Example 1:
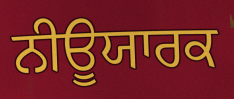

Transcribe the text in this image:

ਨੀਊਯਾਰਕ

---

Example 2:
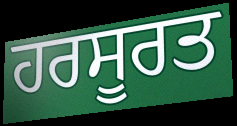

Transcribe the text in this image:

ਹਰਸੂਰਤ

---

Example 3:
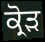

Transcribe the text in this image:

ਕ੍ਰੋੜ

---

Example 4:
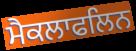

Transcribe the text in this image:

ਮੈਕਲਾਫਲਿਨ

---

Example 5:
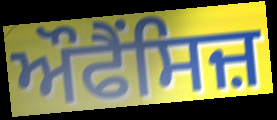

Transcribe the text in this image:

ਔਫੈਂਸਿਜ਼